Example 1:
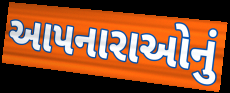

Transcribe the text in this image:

આપનારાઓનું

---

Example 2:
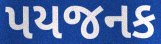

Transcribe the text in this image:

પયજનક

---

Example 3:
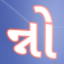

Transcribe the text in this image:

ન્નો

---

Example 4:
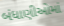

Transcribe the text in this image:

બંધાણીઓમાં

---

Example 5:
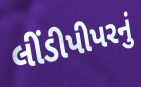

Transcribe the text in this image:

લીંડીપીપરનું